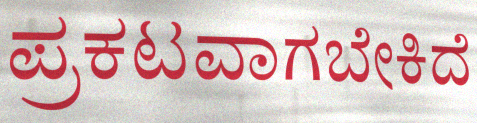
ಪ್ರಕಟವಾಗಬೇಕಿದೆ